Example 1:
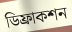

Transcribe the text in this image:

ডিফ্রাকশন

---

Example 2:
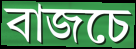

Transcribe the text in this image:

বাজচে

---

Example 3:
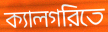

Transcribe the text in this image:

ক্যালগরিতে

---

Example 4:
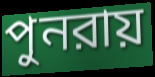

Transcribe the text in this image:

পুনরায়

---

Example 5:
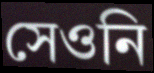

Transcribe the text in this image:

সেওনি